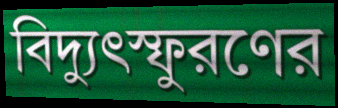
বিদ্যুৎস্ফুরণের